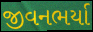
જીવનભર્યા